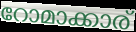
റോമാക്കാര്